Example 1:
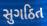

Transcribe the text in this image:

સુગઠિત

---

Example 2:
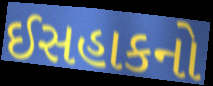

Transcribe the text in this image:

ઈસહાકનો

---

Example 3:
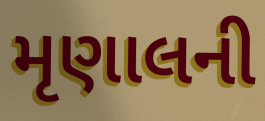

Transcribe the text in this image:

મૃણાલની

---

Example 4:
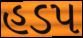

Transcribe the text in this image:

હડપ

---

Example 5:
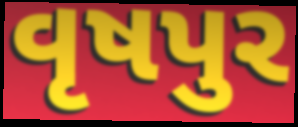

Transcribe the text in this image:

વૃષપુર